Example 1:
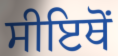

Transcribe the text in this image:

ਸੀਇਥੋਂ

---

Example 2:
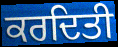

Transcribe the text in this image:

ਕਰਦਿਤੀ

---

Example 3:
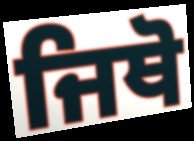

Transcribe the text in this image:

ਜਿਥੋ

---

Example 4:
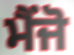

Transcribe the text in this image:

ਮੈਂਜੋ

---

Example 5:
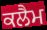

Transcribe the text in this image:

ਕਲੈਮ